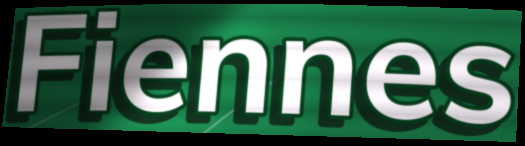
Fiennes